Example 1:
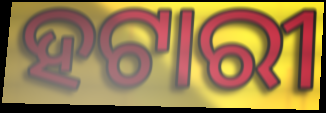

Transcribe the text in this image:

ହଟାରୀ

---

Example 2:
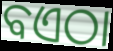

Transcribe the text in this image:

ବଏଠା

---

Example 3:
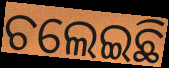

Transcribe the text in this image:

ଚଲେଇଛି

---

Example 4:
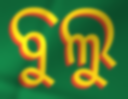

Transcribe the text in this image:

ବୁଲୁ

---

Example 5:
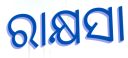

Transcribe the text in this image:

ରାକ୍ଷସା